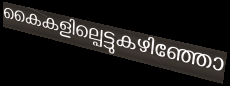
കൈകളില്പെട്ടുകഴിഞ്ഞോ